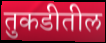
तुकडीतील